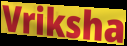
Vriksha